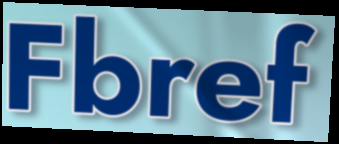
Fbref